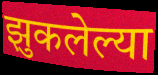
झुकलेल्या